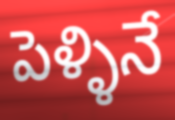
పెళ్ళినే